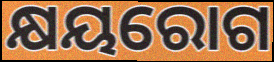
କ୍ଷୟରୋଗ